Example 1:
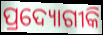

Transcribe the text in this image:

ପ୍ରଦ୍ୟୋଗୀକି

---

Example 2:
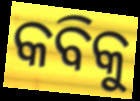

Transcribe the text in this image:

କବିକୁ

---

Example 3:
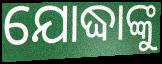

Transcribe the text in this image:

ଯୋଦ୍ଧାଙ୍କୁ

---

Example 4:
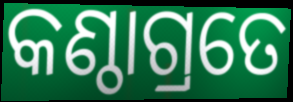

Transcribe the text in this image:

କଣ୍ଠାଗ୍ରତେ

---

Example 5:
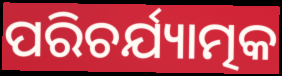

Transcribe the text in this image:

ପରିଚର୍ଯ୍ୟାତ୍ମକ